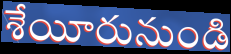
శేయీరునుండి